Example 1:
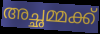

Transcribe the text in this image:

അച്ഛമ്മക്ക്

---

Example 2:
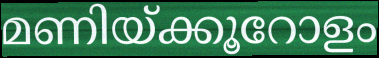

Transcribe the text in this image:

മണിയ്ക്കൂറോളം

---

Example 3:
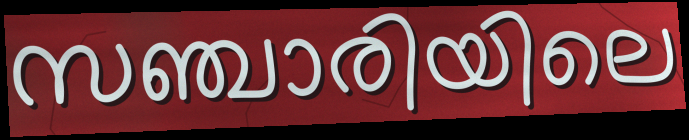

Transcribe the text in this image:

സഞ്ചാരിയിലെ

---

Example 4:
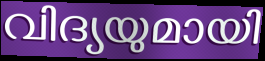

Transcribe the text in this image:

വിദ്യയുമായി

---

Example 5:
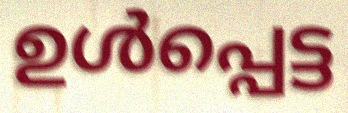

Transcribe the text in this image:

ഉൾപ്പെട്ട